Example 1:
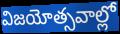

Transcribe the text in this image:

విజయోత్సవాల్లో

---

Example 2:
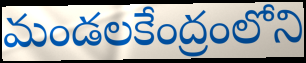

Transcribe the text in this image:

మండలకేంద్రంలోని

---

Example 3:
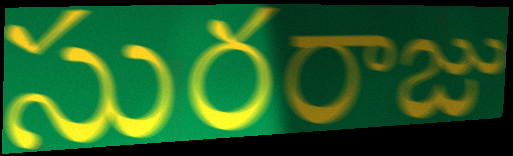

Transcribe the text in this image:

సురరాజు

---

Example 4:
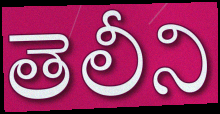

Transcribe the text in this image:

తెలీని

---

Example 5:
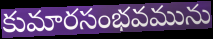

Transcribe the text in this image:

కుమారసంభవమును